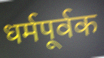
धर्मपूर्वक